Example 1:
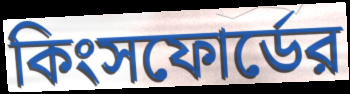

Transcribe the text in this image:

কিংসফোর্ডের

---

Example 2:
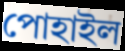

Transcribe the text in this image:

পোহাইল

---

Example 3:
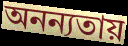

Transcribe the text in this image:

অনন্যতায়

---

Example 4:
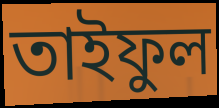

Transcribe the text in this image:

তাইফুল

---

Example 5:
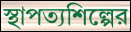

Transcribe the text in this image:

স্থাপত্যশিল্পের